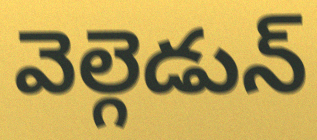
వెల్గెడున్